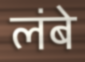
लंबे